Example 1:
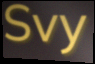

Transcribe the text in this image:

Svy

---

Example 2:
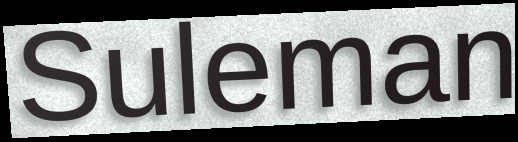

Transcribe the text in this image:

Suleman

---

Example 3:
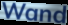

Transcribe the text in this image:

Wand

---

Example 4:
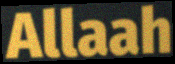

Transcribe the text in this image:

Allaah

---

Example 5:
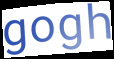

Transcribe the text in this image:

gogh